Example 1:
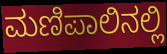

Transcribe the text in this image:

ಮಣಿಪಾಲಿನಲ್ಲಿ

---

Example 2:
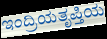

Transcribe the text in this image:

ಇಂದ್ರಿಯತೃಪ್ತಿಯ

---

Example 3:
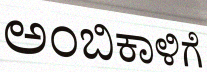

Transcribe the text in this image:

ಅಂಬಿಕಾಳಿಗೆ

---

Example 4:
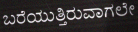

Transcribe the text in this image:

ಬರೆಯುತ್ತಿರುವಾಗಲೇ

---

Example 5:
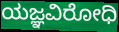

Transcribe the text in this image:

ಯಜ್ಞವಿರೋಧಿ